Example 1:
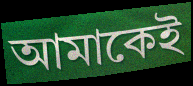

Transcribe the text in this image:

আমাকেই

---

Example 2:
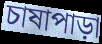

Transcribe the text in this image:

চাষাপাড়া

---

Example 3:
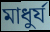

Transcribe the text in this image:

মাধুর্য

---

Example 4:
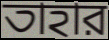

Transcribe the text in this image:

তাহার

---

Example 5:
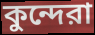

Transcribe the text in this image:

কুন্দেরা